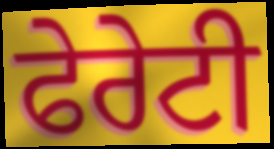
ਫੇਰੇਟੀ